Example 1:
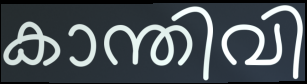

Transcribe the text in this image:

കാന്തിവി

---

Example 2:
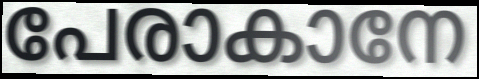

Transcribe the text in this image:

പേരാകാനേ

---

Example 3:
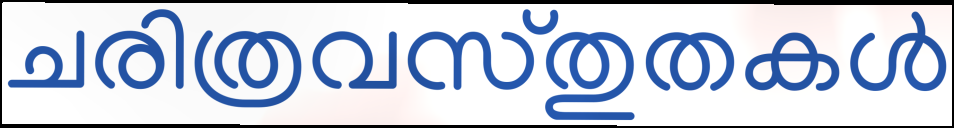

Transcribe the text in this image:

ചരിത്രവസ്തുതകൾ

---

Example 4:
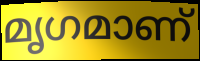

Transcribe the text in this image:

മൃഗമാണ്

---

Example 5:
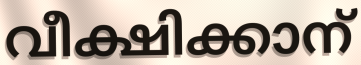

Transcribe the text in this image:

വീക്ഷിക്കാന്